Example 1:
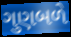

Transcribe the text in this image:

ગુણબળે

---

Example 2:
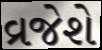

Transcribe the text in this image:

વ્રજેશે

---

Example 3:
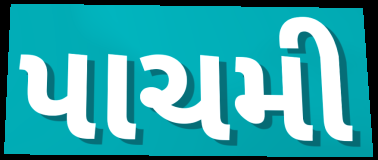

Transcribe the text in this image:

પાચમી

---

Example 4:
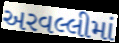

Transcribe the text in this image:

અરવલ્લીમાં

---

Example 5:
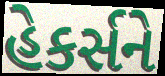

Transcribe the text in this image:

હેકર્સને